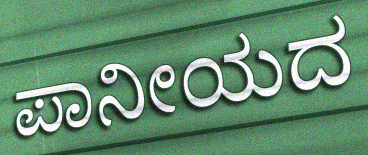
ಪಾನೀಯದ